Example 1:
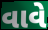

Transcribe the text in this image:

વાવે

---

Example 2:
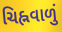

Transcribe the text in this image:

ચિહ્નવાળું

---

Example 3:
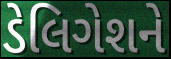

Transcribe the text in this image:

ડેલિગેશને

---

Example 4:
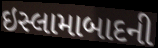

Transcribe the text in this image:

ઇસ્લામાબાદની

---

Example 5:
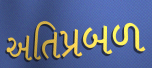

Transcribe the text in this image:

અતિપ્રબળ